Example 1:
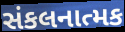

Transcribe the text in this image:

સંકલનાત્મક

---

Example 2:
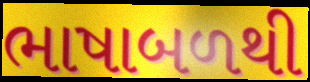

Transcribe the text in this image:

ભાષાબળથી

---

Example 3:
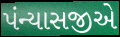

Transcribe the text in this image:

પંન્યાસજીએ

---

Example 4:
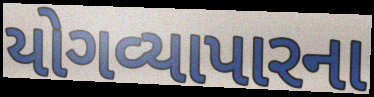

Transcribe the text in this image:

યોગવ્યાપારના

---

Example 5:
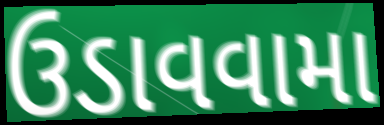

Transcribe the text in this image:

ઉડાવવામા